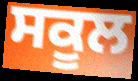
ਸਕੂਲ